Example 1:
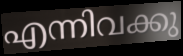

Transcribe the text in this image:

എന്നിവക്കു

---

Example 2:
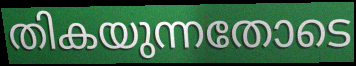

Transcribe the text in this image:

തികയുന്നതോടെ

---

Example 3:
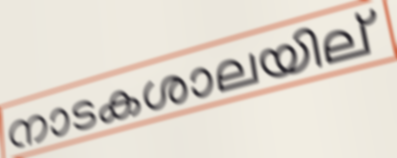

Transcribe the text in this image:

നാടകശാലയില്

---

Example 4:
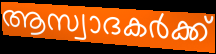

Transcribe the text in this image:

ആസ്വാദകർക്ക്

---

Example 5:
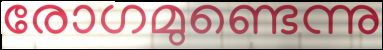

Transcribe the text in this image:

രോഗമുണ്ടെന്നു